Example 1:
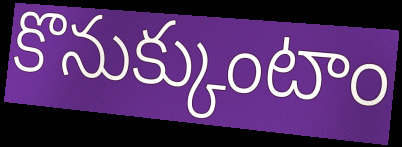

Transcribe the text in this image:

కొనుక్కుంటాం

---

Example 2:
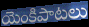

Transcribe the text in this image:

యెంకిపాటలు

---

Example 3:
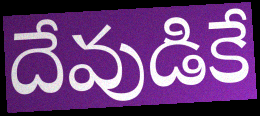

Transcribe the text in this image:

దేవుడికే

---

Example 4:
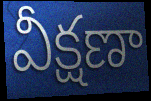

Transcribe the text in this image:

వీక్షణా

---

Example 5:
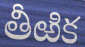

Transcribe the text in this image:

తీఱిక